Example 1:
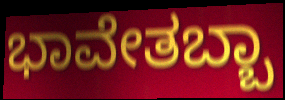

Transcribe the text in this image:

ಭಾವೇತಬ್ಬಾ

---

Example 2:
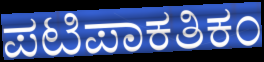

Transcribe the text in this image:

ಪಟಿಪಾಕತಿಕಂ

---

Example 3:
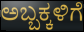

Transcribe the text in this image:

ಅಬ್ಬಕ್ಕಳಿಗೆ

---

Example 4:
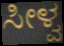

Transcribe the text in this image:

ಸೀಳ್ವ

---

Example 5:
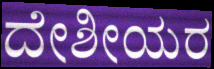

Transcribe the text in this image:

ದೇಶೀಯರ